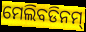
ମେଲିବଡିନମ୍